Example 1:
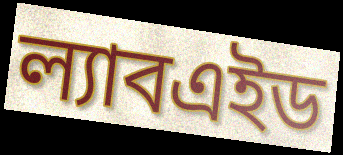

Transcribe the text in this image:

ল্যাবএইড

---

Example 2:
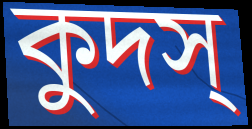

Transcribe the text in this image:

কুদস্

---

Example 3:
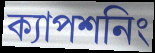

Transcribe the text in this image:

ক্যাপশনিং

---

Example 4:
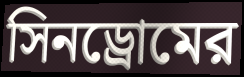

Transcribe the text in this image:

সিনড্রোমের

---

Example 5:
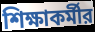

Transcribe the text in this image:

শিক্ষাকর্মীর